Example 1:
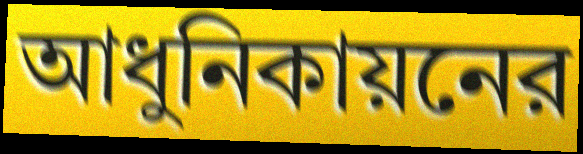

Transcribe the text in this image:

আধুনিকায়নের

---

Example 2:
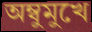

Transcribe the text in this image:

অম্বুমুখে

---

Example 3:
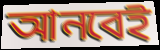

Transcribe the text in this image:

আনবেই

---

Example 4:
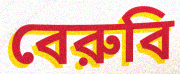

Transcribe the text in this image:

বেরুবি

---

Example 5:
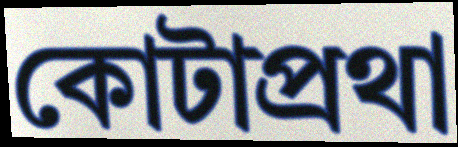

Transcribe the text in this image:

কোটাপ্রথা